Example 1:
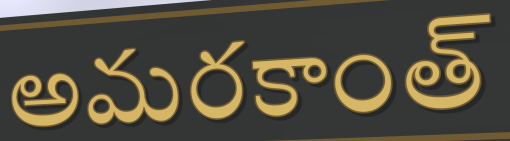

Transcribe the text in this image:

అమరకాంత్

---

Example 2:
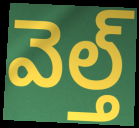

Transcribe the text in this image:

వెల్త్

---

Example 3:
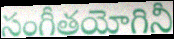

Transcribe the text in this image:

సంగీతయోగినీ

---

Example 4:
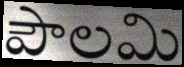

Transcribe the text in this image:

పౌలమి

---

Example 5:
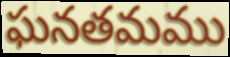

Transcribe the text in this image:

ఘనతమము